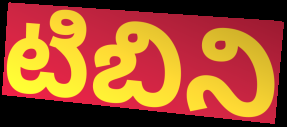
టిబిని